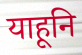
याहूनि